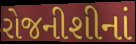
રોજનીશીનાં